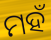
ମହଁ